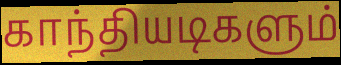
காந்தியடிகளும்